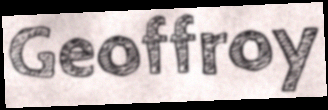
Geoffroy